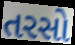
તરસો